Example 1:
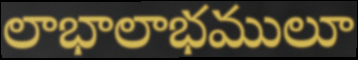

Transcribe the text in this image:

లాభాలాభములూ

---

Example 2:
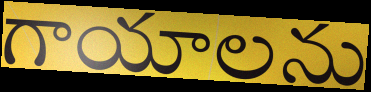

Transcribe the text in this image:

గాయాలను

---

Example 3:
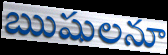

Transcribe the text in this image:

ఋషులనూ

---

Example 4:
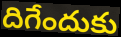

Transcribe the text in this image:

దిగేందుకు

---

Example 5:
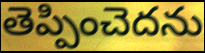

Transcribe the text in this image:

తెప్పించెదను